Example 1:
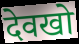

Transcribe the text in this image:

देवखो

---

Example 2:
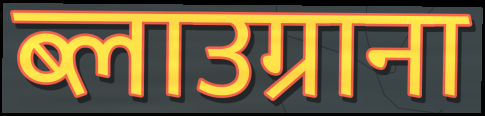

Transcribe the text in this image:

ब्लाउग्राना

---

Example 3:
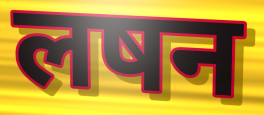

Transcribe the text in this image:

लषन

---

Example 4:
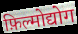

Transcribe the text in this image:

फ़िल्मोद्योग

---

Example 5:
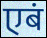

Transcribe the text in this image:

एबं